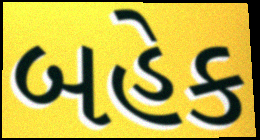
બહેક